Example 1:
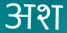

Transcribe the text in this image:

अश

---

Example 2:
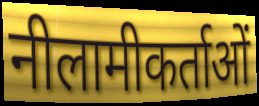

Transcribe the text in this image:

नीलामीकर्ताओं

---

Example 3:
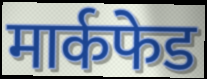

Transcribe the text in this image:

मार्कफेड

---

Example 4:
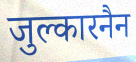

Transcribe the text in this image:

जुल्कारनैन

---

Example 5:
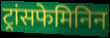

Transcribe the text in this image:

ट्रांसफेमिनिन